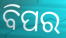
ବିପର